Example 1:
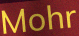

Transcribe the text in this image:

Mohr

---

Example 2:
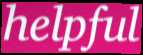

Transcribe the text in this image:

helpful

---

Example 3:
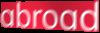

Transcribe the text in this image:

abroad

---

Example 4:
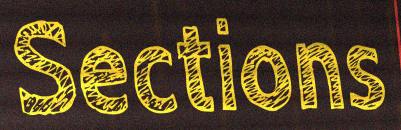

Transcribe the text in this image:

Sections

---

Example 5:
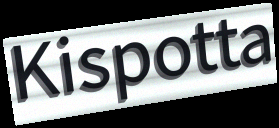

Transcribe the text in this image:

Kispotta